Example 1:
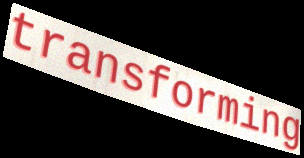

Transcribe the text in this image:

transforming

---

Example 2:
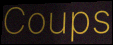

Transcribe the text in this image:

Coups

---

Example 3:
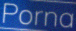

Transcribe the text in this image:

Porna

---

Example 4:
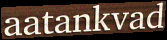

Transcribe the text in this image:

aatankvad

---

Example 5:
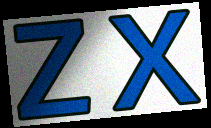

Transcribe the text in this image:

zx